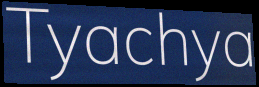
Tyachya